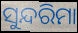
ସୁନ୍ଦରିମା